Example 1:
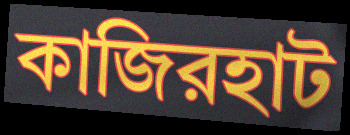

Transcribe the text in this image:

কাজিরহাট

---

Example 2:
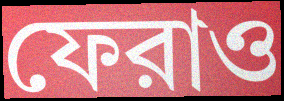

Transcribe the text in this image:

ফেরাও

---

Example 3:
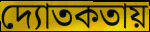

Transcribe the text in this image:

দ্যোতকতায়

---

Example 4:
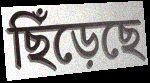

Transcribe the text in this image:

ছিঁড়েছে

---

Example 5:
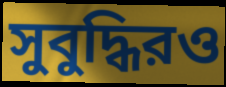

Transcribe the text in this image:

সুবুদ্ধিরও